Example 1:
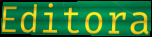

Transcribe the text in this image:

Editora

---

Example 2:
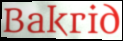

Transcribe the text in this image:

Bakrid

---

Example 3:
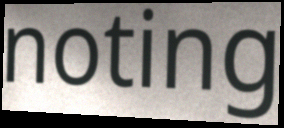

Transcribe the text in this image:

noting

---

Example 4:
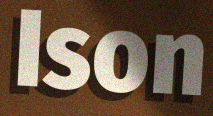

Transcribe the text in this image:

Ison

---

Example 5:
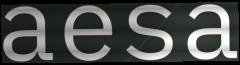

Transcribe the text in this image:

aesa